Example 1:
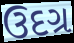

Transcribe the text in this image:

ઉદગ્ર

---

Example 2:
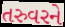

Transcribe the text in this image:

તરુવરને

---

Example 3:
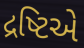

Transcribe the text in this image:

દ્રષ્ટિએ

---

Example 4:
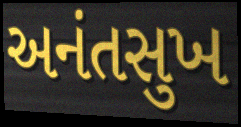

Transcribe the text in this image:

અનંતસુખ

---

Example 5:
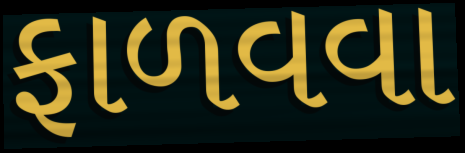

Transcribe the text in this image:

ફાળવવા